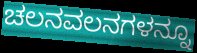
ಚಲನವಲನಗಳನ್ನೂ